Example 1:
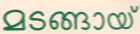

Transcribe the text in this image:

മടങ്ങായ്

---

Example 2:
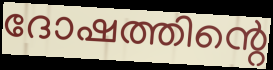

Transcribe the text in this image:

ദോഷത്തിന്റെ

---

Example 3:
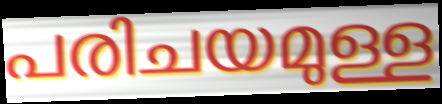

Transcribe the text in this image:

പരിചയമുള്ള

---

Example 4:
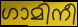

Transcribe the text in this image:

ഗാമിനീ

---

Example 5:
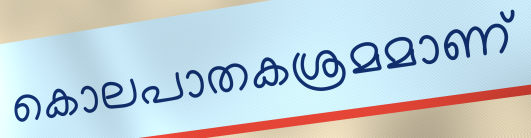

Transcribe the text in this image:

കൊലപാതകശ്രമമാണ്